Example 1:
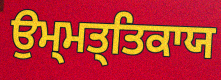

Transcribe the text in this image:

ਉਮ੍ਮਤ੍ਤਿਕਾਯ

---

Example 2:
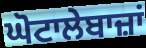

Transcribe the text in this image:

ਘੋਟਾਲੇਬਾਜ਼ਾਂ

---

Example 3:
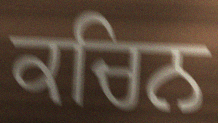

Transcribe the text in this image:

ਕਚਿਨ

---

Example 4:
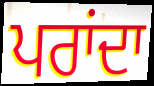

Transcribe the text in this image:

ਪਰਾਂਦਾ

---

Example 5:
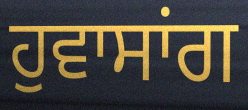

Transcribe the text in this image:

ਹੁਵਾਸਾਂਗ